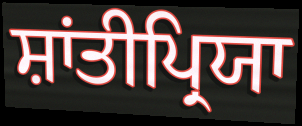
ਸ਼ਾਂਤੀਪ੍ਰਿਯਾ